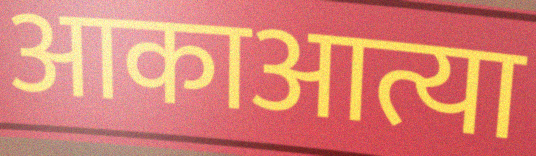
आकाआत्या